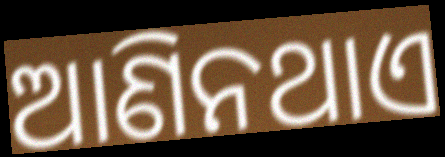
ଆଣିନଥାଏ